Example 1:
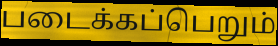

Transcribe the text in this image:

படைக்கப்பெறும்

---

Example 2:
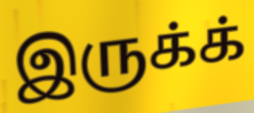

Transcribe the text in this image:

இருக்க்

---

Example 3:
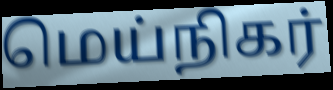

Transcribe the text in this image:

மெய்நிகர்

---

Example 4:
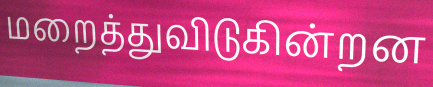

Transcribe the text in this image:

மறைத்துவிடுகின்றன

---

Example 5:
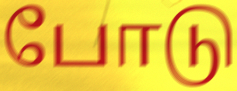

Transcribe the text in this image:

போடு